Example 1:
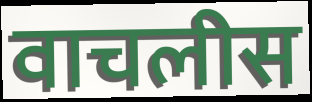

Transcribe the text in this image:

वाचलीस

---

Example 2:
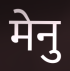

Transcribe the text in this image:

मेनु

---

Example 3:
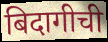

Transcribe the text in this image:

बिदागीची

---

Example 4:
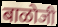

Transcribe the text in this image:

बाळोजी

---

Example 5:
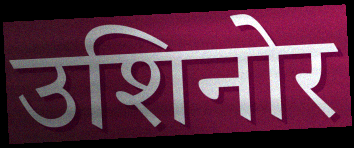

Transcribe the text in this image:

उशिनोर